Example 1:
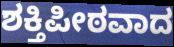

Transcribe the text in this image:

ಶಕ್ತಿಪೀಠವಾದ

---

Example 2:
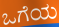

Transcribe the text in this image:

ಒಗೆಯ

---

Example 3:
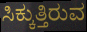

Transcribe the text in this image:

ಸಿಕ್ಕುತ್ತಿರುವ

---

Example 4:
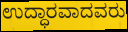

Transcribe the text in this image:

ಉದ್ಧಾರವಾದವರು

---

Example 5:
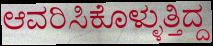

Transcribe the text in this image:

ಆವರಿಸಿಕೊಳ್ಳುತ್ತಿದ್ದ